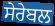
ਸੇਰੇਬਲ